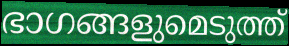
ഭാഗങ്ങളുമെടുത്ത്